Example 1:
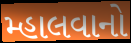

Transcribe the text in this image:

મ્હાલવાનો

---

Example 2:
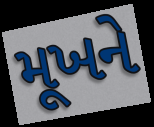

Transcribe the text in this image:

મૂખને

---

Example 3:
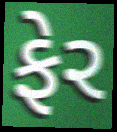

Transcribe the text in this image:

ફેર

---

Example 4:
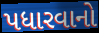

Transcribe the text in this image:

પધારવાનો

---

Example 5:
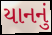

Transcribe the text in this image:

યાનનું